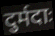
दुर्मदाः